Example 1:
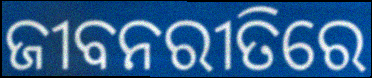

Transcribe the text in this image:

ଜୀବନରୀତିରେ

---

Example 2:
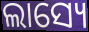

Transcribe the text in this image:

ଲାସ୍ୟେ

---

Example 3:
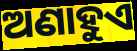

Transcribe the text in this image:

ଅଣାହୁଏ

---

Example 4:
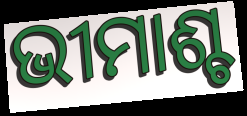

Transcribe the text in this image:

ଭୀମାଶ୍ଚ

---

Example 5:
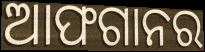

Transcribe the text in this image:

ଆଫଗାନର